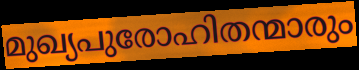
മുഖ്യപുരോഹിതന്മാരും